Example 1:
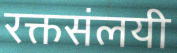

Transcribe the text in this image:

रक्तसंलयी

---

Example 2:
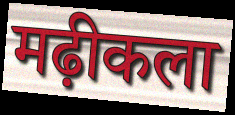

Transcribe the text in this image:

मढ़ीकला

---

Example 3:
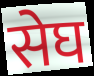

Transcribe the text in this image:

सेघ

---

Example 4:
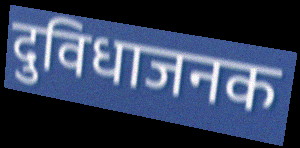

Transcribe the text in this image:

दुविधाजनक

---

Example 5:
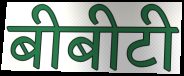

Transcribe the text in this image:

बीबीटी